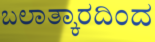
ಬಲಾತ್ಕಾರದಿಂದ